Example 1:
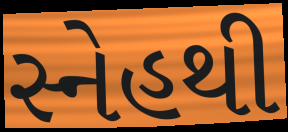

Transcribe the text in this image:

સ્નેહથી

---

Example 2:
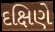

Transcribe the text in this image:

દક્ષિણે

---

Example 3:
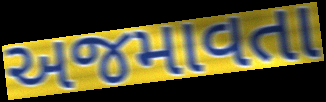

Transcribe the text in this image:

અજમાવતા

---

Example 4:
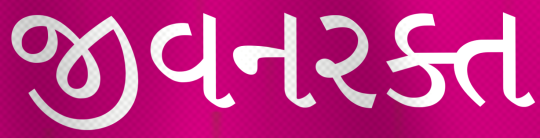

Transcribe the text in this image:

જીવનરક્ત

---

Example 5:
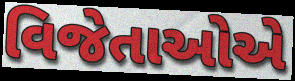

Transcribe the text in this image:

વિજેતાઓએ